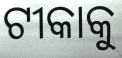
ଟୀକାକୁ